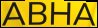
ABHA